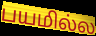
பயமில்ல